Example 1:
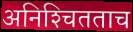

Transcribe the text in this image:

अनिश्चितताच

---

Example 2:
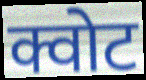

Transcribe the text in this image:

क्वोट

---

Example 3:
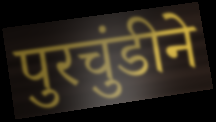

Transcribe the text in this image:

पुरचुंडीने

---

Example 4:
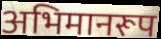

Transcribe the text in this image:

अभिमानरूप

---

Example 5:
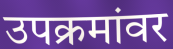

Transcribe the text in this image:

उपक्रमांवर